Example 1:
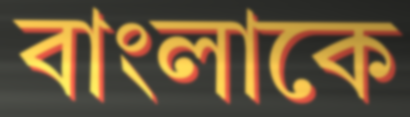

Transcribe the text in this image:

বাংলাকে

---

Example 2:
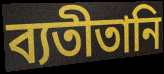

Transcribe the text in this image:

ব্যতীতানি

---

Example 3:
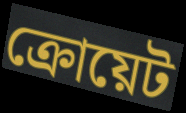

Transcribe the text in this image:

ক্রোয়েট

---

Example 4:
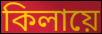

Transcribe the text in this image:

কিলায়ে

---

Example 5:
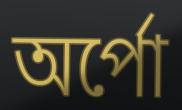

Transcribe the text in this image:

অর্পো